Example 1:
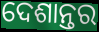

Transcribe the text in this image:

ଦେଶାନ୍ତର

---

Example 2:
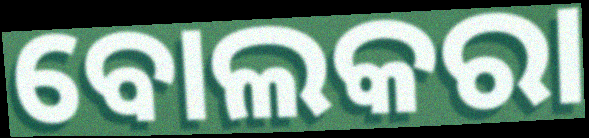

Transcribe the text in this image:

ବୋଲକରା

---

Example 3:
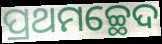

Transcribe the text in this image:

ପ୍ରଥମଚ୍ଛେଦ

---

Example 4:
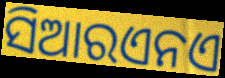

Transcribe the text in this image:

ସିଆରଏନଏ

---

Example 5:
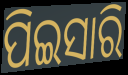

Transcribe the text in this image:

ପିଇସାରି